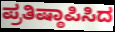
ಪ್ರತಿಷ್ಠಾಪಿಸಿದ